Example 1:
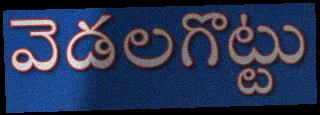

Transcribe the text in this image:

వెడలగొట్టు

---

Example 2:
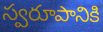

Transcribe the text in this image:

స్వరూపానికి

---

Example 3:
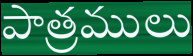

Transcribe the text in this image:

పాత్రములు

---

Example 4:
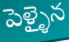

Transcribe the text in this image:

పెళ్ళైన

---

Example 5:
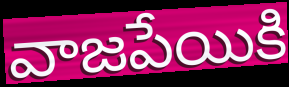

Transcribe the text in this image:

వాజపేయికి